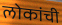
लोकांची